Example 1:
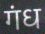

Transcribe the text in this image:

गंध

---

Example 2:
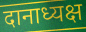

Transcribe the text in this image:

दानाध्यक्ष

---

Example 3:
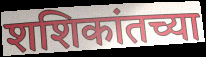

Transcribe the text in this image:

शशिकांतच्या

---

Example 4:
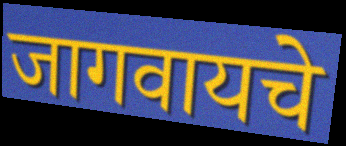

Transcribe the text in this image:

जागवायचे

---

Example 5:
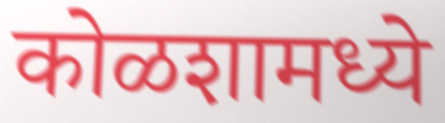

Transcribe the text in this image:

कोळशामध्ये